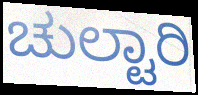
ಚುಲ್ಟಾರಿ